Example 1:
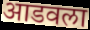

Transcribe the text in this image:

आडवला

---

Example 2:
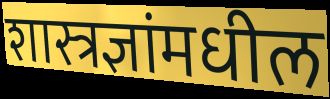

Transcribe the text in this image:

शास्त्रज्ञांमधील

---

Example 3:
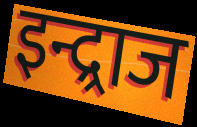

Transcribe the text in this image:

इन्द्र्राज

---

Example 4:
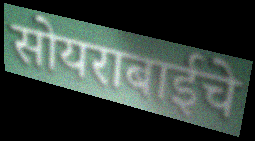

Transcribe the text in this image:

सोयराबाईचे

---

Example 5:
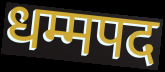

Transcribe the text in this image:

धम्मपद